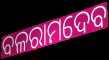
ବଳରାମଦେବ